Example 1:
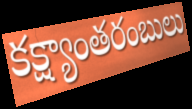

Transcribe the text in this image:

కక్ష్యాంతరంబులు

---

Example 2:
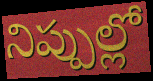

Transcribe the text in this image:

నిప్పుల్లో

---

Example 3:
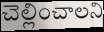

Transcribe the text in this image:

చెల్లించాలని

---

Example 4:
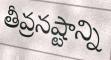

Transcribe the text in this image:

తీవ్రనష్టాన్ని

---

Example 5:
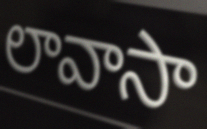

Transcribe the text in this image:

లావాసా